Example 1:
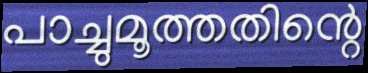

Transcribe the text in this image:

പാച്ചുമൂത്തതിന്റെ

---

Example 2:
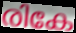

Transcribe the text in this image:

രികേ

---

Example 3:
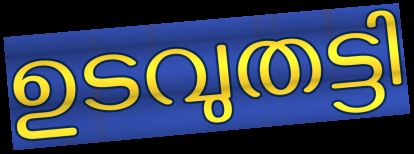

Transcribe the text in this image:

ഉടവുതട്ടി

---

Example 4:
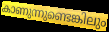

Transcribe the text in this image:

കാണുന്നുണ്ടെങ്കിലും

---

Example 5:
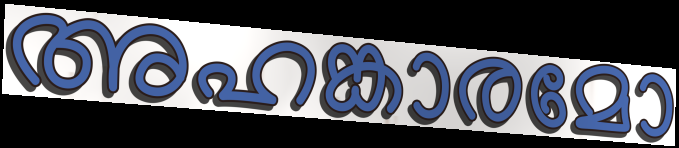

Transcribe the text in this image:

അഹങ്കാരമോ